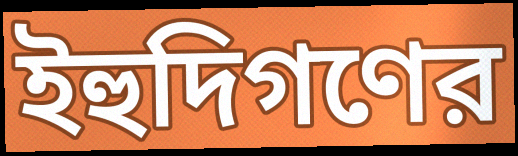
ইহুদিগণের